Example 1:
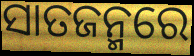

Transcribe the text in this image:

ସାତଜନ୍ମରେ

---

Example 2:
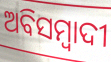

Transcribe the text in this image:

ଅବିସମ୍ବାଦୀ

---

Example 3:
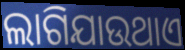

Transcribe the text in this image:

ଲାଗିଯାଉଥାଏ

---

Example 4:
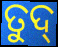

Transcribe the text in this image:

ତୁଦ୍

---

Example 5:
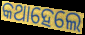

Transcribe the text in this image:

କଥାହେଲେ